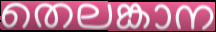
തെലങ്കാന